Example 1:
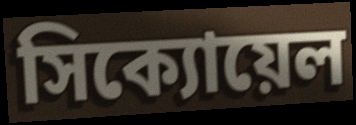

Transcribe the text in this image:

সিক্যোয়েল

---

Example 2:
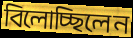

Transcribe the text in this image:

বিলোচ্ছিলেন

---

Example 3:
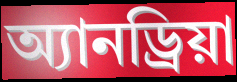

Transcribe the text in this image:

অ্যানড্রিয়া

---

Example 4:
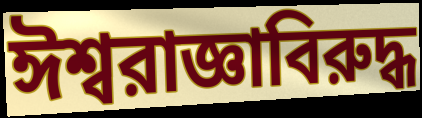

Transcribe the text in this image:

ঈশ্বরাজ্ঞাবিরুদ্ধ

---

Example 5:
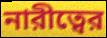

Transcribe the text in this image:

নারীত্বের